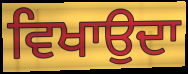
ਵਿਖਾਉਦਾ